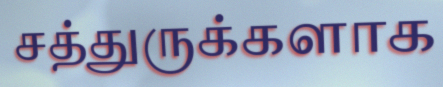
சத்துருக்களாக